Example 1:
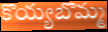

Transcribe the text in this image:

కొయ్యబొమ్మ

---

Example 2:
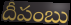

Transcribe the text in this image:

దీపంబు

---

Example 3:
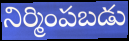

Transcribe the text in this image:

నిర్మింపబడు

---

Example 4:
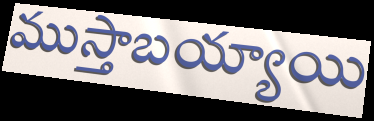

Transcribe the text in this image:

ముస్తాబయ్యాయి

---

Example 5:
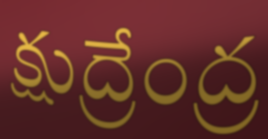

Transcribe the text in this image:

క్షుద్రేంద్ర